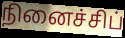
நினைச்சிப்